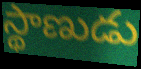
స్థాణుడు